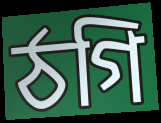
ঠগি